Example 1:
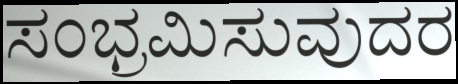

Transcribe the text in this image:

ಸಂಭ್ರಮಿಸುವುದರ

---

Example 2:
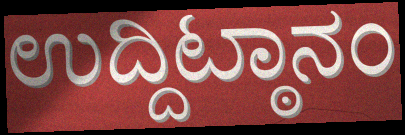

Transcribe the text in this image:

ಉದ್ದಿಟ್ಠಾನಂ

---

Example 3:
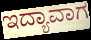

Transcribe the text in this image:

ಇದ್ಯಾವಾಗ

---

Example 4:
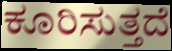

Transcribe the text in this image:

ಕೂರಿಸುತ್ತದೆ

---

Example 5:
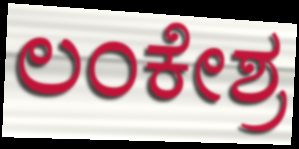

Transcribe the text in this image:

ಲಂಕೇಶ್ರ